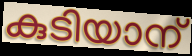
കുടിയാന്